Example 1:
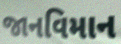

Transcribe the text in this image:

જાનવિમાન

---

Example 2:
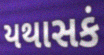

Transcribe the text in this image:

યથાસકં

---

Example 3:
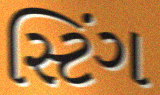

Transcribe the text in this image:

સ્ટિંગ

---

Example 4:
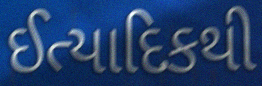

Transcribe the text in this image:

ઈત્યાદિકથી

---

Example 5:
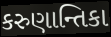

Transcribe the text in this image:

કરુણાન્તિકા